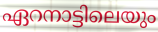
ഏറനാട്ടിലെയും